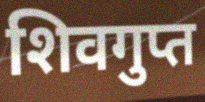
शिवगुप्त